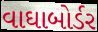
વાઘાબોર્ડર